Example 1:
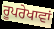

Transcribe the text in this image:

ਰੂਪਰੇਖਾਵਾਂ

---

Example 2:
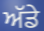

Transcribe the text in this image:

ਅੱਡੇ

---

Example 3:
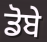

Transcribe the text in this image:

ਡੋਬੇ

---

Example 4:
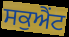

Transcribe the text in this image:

ਸਕੁਐਂਟ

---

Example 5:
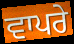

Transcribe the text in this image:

ਵਾਪਰੇ